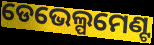
ଡେଭେଲ୍ପମେଣ୍ଟ